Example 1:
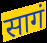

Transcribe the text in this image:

सागं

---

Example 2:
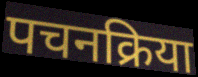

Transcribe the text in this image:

पचनक्रिया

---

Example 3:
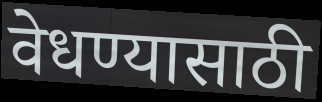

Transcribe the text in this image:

वेधण्यासाठी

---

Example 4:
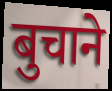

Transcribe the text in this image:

बुचाने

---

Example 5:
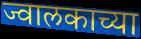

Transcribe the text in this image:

ज्वालकाच्या